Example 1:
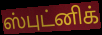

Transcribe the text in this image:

ஸ்புட்னிக்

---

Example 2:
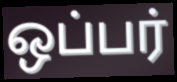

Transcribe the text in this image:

ஒப்பர்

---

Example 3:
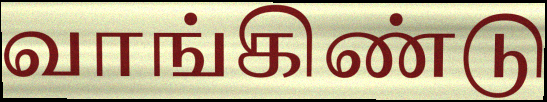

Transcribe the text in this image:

வாங்கிண்டு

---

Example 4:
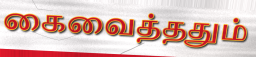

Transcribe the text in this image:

கைவைத்ததும்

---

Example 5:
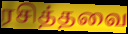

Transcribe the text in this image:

ரசித்தவை